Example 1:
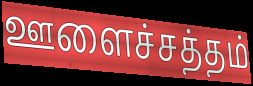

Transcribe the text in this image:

ஊளைச்சத்தம்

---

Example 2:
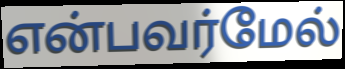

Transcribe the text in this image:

என்பவர்மேல்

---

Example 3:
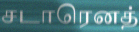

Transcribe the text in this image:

சடாரெனத்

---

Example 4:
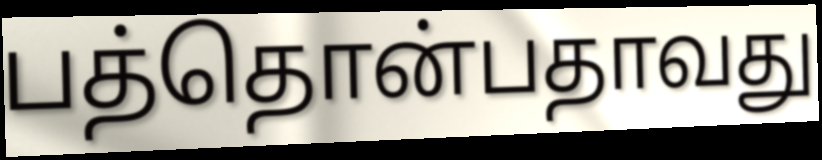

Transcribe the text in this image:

பத்தொன்பதாவது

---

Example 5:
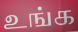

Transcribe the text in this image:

உங்க